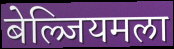
बेल्जियमला